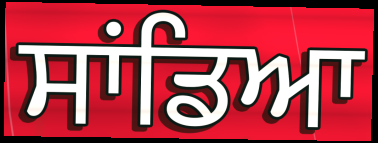
ਸਾਂਡਿਆ